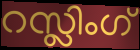
റസ്ലിംഗ്